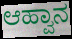
ಆಹ್ವಾನ